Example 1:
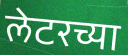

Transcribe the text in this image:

लेटरच्या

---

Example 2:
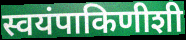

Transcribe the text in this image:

स्वयंपाकिणीशी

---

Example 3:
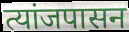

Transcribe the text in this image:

त्यांजपासन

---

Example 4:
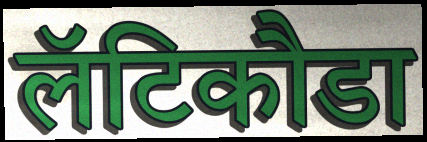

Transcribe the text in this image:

लॅटिकौडा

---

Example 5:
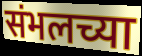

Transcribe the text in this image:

संभलच्या